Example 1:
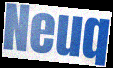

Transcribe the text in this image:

Neuq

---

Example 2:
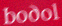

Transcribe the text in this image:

bodol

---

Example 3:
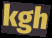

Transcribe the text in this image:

kgh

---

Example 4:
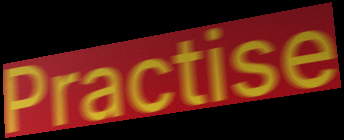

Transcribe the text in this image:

Practise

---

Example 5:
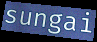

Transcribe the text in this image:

sungai